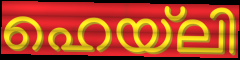
ഹെയ്‌ലി